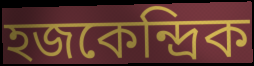
হজকেন্দ্রিক